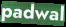
padwal